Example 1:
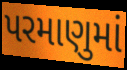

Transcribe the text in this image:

પરમાણુમાં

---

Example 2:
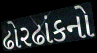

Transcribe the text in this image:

ઢોરઢાંકનો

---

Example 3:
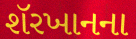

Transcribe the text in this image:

શૅરખાનના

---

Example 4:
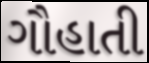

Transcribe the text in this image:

ગૌહાતી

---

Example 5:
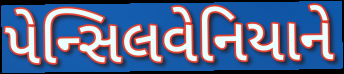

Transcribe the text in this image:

પેન્સિલવેનિયાને